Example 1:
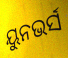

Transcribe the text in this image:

ୟୁନଭର୍ସ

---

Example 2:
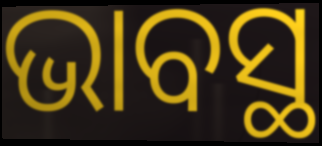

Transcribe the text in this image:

ଭାବସ୍ଥ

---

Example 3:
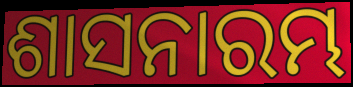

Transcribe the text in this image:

ଶାସନାରମ୍ଭ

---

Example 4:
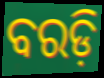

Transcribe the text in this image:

ବରଡ଼ି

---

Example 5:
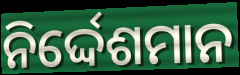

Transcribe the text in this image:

ନିର୍ଦ୍ଦେଶମାନ